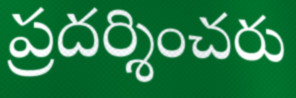
ప్రదర్శించరు